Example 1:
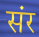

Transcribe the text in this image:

संर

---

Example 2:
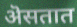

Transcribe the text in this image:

ऄसतात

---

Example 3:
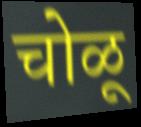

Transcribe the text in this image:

चोळू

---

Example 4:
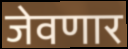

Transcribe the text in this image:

जेवणार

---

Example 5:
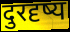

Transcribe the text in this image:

दुरदृष्य